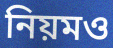
নিয়মও